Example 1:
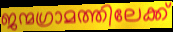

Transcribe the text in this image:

ജന്മഗ്രാമത്തിലേക്ക്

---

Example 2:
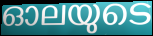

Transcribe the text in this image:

ഓലയുടെ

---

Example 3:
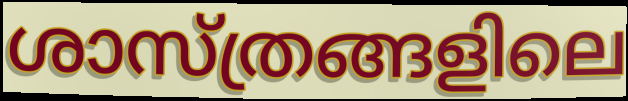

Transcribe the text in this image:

ശാസ്ത്രങ്ങളിലെ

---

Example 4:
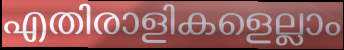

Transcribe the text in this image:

എതിരാളികളെല്ലാം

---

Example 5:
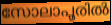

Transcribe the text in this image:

സോലാപൂരിൽ